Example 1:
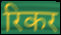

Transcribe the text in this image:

रिकर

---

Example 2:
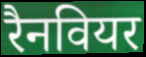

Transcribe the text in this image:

रैनवियर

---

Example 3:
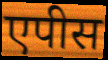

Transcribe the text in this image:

एपीस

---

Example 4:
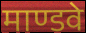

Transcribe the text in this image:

माण्डवे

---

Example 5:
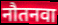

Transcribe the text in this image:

नौतनवा